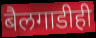
बैलगाडीही